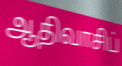
ஆதிவாசிப்